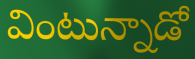
వింటున్నాడో